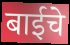
बाईचे